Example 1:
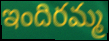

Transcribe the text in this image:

ఇందిరమ్మ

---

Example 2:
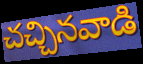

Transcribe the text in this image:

చచ్చినవాడి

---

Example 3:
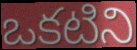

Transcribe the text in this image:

ఒకటిని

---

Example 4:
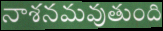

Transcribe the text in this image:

నాశనమవుతుంది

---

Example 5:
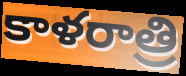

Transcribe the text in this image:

కాళరాత్రి